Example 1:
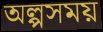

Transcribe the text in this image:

অল্পসময়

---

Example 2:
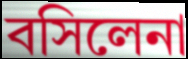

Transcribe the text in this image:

বসিলেনা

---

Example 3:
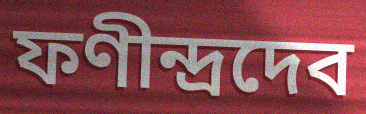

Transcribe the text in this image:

ফণীন্দ্রদেব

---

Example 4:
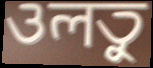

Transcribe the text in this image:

ওলতু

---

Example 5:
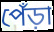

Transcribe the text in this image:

পেঁড়া